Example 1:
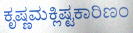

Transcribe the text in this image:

ಕೃಷ್ಣಮಕ್ಲಿಷ್ಟಕಾರಿಣಂ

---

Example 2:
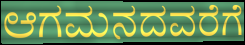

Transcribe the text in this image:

ಆಗಮನದವರೆಗೆ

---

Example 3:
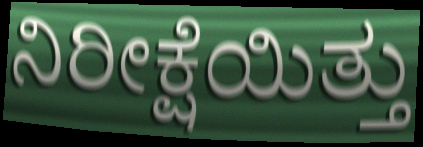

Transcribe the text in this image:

ನಿರೀಕ್ಷೆಯಿತ್ತು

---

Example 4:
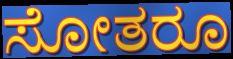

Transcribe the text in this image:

ಸೋತರೂ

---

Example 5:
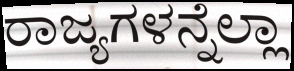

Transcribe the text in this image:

ರಾಜ್ಯಗಳನ್ನೆಲ್ಲಾ